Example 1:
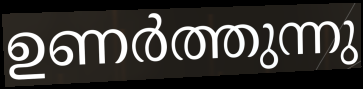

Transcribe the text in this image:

ഉണർത്തുന്നു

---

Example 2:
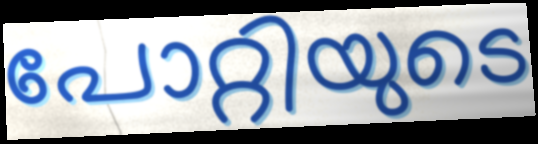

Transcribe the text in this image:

പോറ്റിയുടെ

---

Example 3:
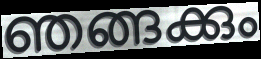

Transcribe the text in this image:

ഞങ്ങക്കും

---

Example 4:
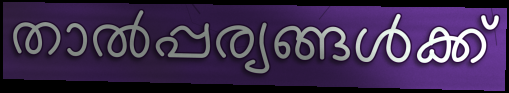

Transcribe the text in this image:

താൽപ്പര്യങ്ങൾക്ക്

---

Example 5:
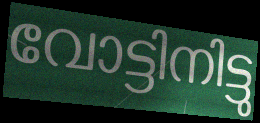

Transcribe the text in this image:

വോട്ടിനിട്ടു